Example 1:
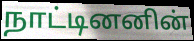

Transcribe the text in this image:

நாட்டினனின்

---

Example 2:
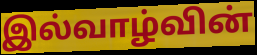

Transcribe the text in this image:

இல்வாழ்வின்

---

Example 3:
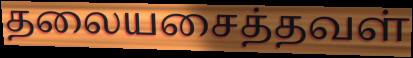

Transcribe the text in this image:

தலையசைத்தவள்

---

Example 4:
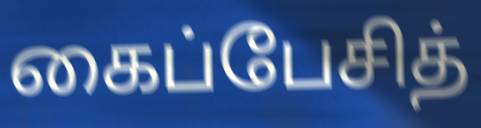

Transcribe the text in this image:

கைப்பேசித்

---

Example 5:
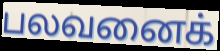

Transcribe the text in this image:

பலவனைக்